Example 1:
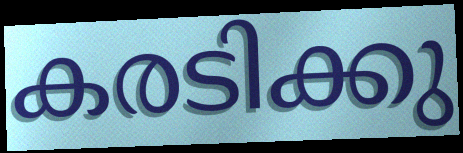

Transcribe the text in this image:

കരടിക്കു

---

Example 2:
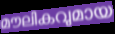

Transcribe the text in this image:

മൗലികവുമായ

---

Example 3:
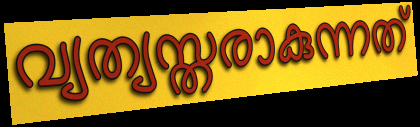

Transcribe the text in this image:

വ്യത്യസ്തരാകുന്നത്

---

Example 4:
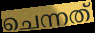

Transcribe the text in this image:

ചെന്നത്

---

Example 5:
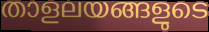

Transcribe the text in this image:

താളലയങ്ങളുടെ